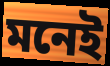
মনেই